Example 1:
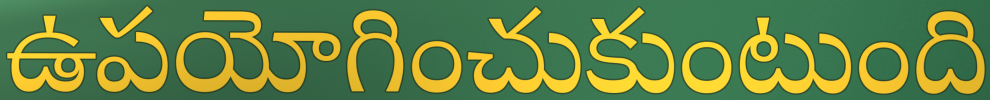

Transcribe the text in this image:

ఉపయోగించుకుంటుంది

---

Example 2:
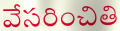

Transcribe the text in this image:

వేసరించితి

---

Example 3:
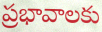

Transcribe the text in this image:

ప్రభావాలకు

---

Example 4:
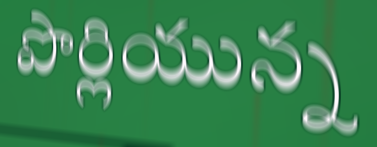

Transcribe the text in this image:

పొర్లియున్న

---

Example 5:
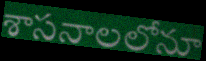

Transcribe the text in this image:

శాసనాలలోనూ